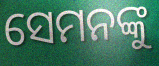
ସେମନଙ୍କୁ